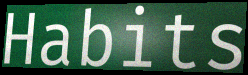
Habits